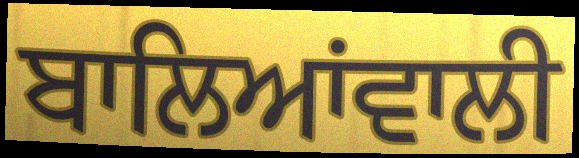
ਬਾਲਿਆਂਵਾਲੀ